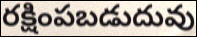
రక్షింపబడుదువు